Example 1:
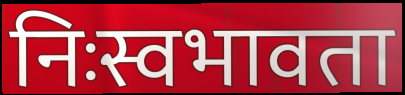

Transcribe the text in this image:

निःस्वभावता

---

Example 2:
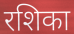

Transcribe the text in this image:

रशिका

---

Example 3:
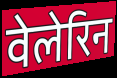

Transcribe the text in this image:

वेलेरिन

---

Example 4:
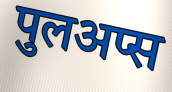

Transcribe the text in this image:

पुलअप्स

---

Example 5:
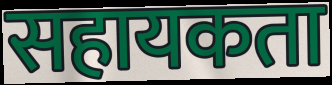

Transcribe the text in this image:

सहायकता